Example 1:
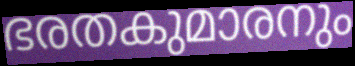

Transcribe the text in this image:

ഭരതകുമാരനും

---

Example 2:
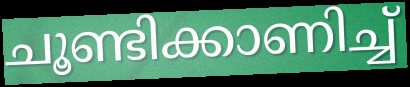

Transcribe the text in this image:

ചൂണ്ടിക്കാണിച്ച്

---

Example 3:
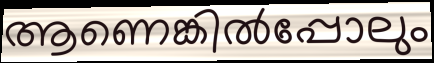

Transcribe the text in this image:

ആണെങ്കിൽപ്പോലും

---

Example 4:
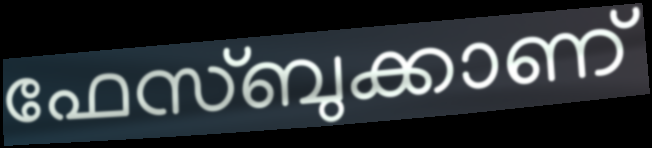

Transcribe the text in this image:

ഫേസ്ബുക്കാണ്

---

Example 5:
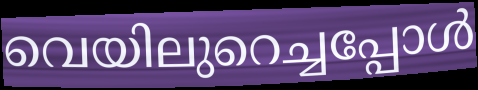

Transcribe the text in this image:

വെയിലുറെച്ചപ്പോൾ